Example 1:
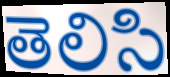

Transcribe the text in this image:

తెలిసి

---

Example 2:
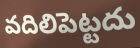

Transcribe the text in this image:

వదిలిపెట్టదు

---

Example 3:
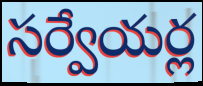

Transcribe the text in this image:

సర్వేయర్ల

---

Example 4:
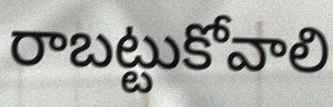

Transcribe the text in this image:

రాబట్టుకోవాలి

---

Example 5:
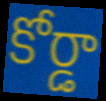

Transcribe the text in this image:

కోర్డా